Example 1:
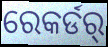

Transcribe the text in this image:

ରେକର୍ଡର୍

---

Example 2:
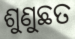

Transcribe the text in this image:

ଶୁଣୁଛତ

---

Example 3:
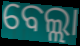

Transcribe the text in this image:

ବେଲ୍ଲା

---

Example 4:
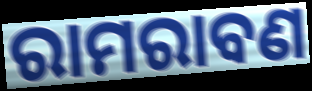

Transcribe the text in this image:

ରାମରାବଣ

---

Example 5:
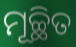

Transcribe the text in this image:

ମୂଚ୍ଛିତ